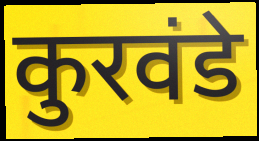
कुरवंडे